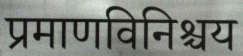
प्रमाणविनिश्चय